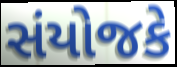
સંયોજકે